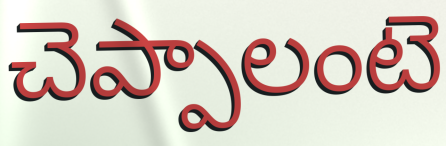
చెప్పాలంటె